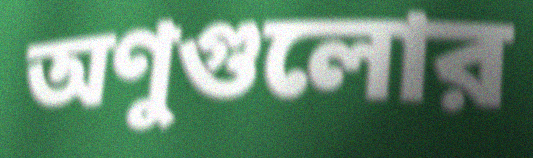
অণুগুলোর